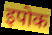
इपोक